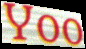
Yoo